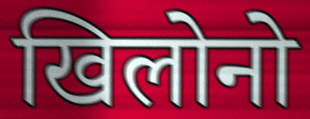
खिलोनो